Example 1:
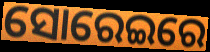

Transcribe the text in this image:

ସୋରେଇରେ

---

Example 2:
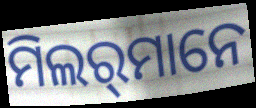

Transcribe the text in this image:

ମିଲର୍‌ମାନେ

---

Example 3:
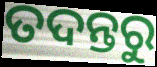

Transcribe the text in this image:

ତଦନ୍ତରୁ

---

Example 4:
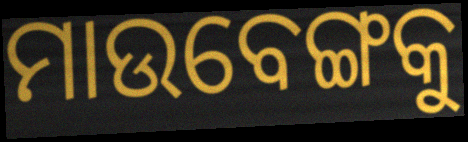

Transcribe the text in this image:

ମାଉବେଙ୍ଗକୁ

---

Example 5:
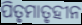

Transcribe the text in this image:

ପିତୃମାତୃହୀନ